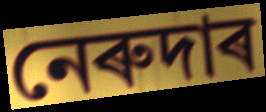
নেৰুদাৰ